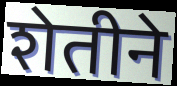
शेतीने